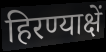
हिरण्याक्षें